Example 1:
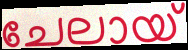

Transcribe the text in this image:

ചേലായ്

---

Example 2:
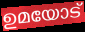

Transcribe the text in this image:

ഉമയോട്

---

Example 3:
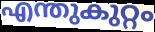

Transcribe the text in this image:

എന്തുകുറ്റം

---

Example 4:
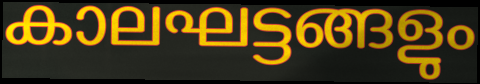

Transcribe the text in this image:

കാലഘട്ടങ്ങളും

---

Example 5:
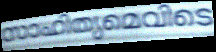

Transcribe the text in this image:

സാഹിത്യമെവിടെ